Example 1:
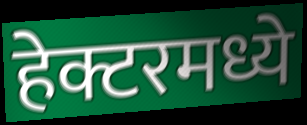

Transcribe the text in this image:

हेक्टरमध्ये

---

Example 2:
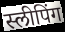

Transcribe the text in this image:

स्लीपिंग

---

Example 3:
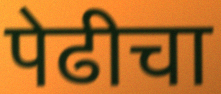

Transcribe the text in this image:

पेढीचा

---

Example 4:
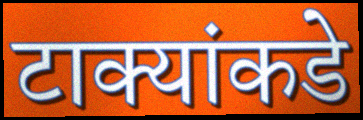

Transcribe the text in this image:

टाक्यांकडे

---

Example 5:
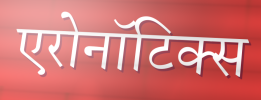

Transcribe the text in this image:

एरोनॉटिक्स